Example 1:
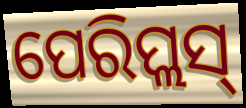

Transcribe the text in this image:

ପେରିପ୍ଲସ୍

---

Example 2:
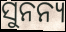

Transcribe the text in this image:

ସୁନନ୍ୟ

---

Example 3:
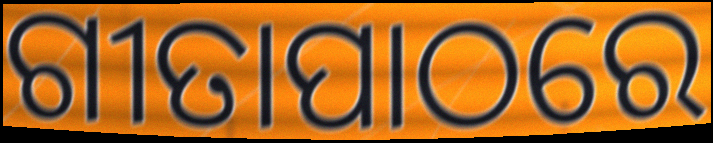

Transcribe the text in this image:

ଗୀତାପାଠରେ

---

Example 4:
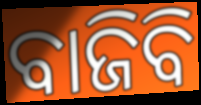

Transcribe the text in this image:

ବାଜିବି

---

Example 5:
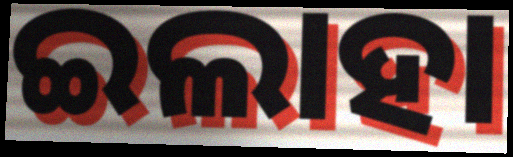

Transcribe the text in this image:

ଇଲାହା